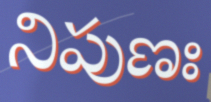
నిపుణః